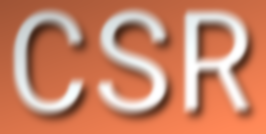
CSR